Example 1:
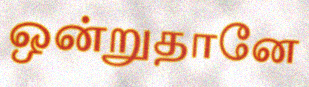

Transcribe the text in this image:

ஒன்றுதானே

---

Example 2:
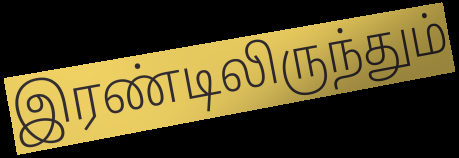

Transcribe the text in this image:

இரண்டிலிருந்தும்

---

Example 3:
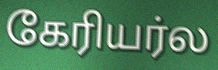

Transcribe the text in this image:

கேரியர்ல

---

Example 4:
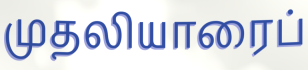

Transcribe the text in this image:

முதலியாரைப்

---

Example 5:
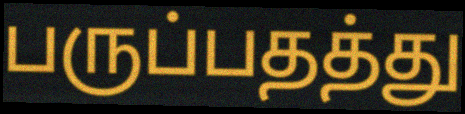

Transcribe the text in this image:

பருப்பதத்து